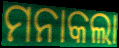
ମନାକଲା